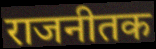
राजनीतक